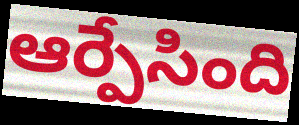
ఆర్పేసింది